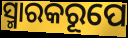
ସ୍ମାରକରୂପେ